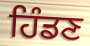
ਹਿੰਡਣ